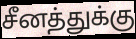
சீனத்துக்கு